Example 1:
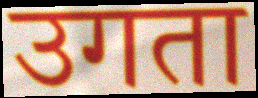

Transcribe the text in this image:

उगता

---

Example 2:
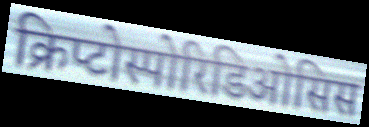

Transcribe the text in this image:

क्रिप्टोस्पोरिडिओसिस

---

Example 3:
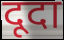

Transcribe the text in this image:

दूदा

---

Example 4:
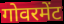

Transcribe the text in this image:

गोवरमेंट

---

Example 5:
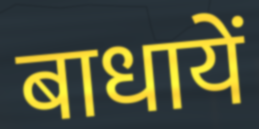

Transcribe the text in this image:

बाधायें